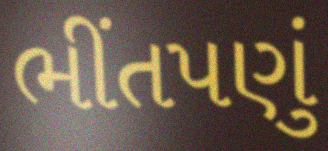
ભીંતપણું